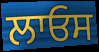
ਲਾਓਸ